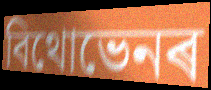
বিথোভেনৰ